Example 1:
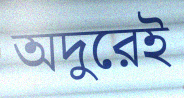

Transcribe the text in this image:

অদুরেই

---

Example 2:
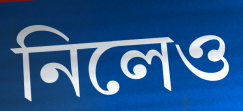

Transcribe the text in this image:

নিলেও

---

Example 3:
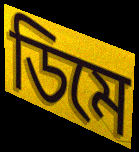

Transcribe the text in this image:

ডিমে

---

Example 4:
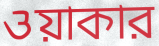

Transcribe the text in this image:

ওয়াকার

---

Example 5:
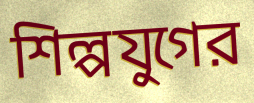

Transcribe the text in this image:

শিল্পযুগের